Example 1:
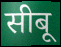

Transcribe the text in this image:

सीबू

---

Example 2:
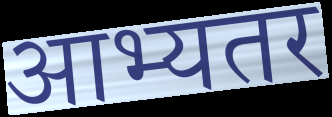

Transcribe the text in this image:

आभ्यतर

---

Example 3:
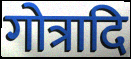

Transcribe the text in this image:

गोत्रादि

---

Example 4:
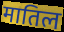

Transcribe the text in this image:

मातिल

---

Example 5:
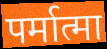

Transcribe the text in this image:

पर्मात्मा